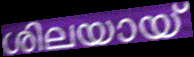
ശിലയായ്